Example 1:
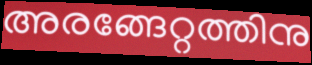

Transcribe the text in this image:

അരങ്ങേറ്റത്തിനു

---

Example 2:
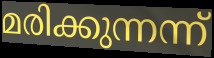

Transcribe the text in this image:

മരിക്കുന്നന്ന്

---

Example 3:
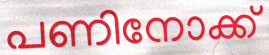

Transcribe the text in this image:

പണിനോക്ക്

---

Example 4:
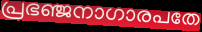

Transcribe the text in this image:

പ്രഭഞ്ജനാഗാരപതേ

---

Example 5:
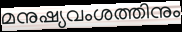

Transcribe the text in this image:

മനുഷ്യവംശത്തിനും